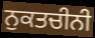
ਨੁਕਤਚੀਨੀ